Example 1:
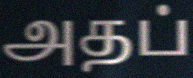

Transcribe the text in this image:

அதப்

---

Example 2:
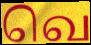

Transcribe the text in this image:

வெ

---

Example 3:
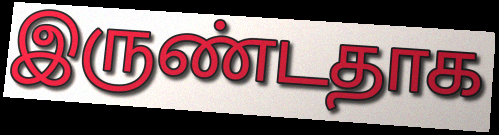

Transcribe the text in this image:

இருண்டதாக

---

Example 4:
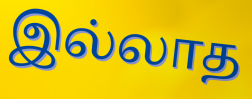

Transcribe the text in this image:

இல்லாத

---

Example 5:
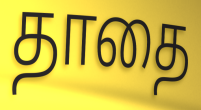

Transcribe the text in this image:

தாதை